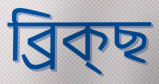
ব্ৰিক্‌ছ